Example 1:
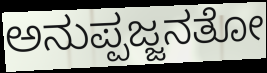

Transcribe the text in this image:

ಅನುಪ್ಪಜ್ಜನತೋ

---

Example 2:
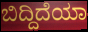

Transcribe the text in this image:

ಬಿದ್ದಿದೆಯಾ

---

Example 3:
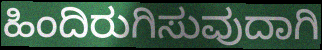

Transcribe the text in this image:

ಹಿಂದಿರುಗಿಸುವುದಾಗಿ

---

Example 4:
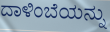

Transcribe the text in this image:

ದಾಳಿಂಬೆಯನ್ನು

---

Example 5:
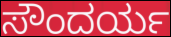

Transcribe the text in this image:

ಸೌಂದರ್ಯ